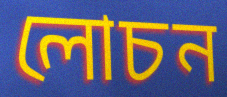
লোচন